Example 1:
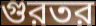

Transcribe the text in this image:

গুরতর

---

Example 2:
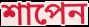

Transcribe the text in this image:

শাপেন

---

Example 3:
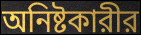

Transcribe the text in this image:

অনিষ্টকারীর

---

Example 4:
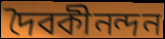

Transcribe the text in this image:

দৈবকীনন্দন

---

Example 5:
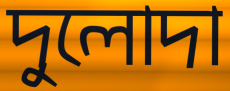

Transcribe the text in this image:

দুলোদা